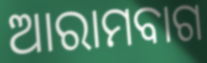
ଆରାମବାଗ